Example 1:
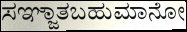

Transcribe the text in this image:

ಸಞ್ಜಾತಬಹುಮಾನೋ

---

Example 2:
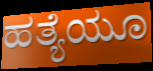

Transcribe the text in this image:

ಹತ್ಯೆಯೂ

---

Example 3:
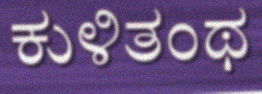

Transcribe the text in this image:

ಕುಳಿತಂಥ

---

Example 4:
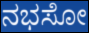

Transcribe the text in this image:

ನಭಸೋ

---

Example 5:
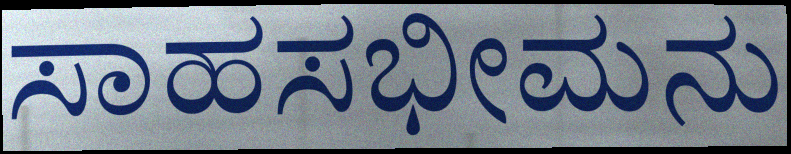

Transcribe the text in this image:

ಸಾಹಸಭೀಮನು